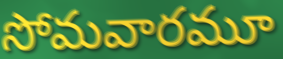
సోమవారమూ